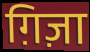
ग़िज़ा